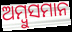
ଅମ୍ବୁସମାନ